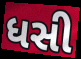
ધસી